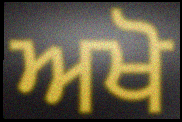
ਅਖੋ